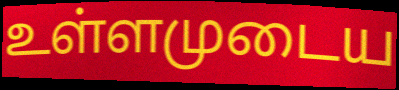
உள்ளமுடைய